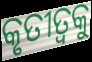
କୃତୀତ୍ଵକୁ